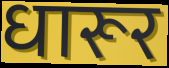
धारूर